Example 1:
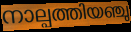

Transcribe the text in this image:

നാല്പത്തിയഞ്ചു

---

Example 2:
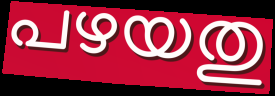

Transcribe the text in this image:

പഴയതു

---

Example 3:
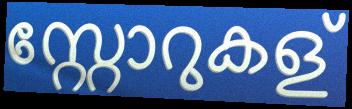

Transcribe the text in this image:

സ്റ്റോറുകള്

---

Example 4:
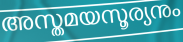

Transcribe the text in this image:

അസ്തമയസൂര്യനും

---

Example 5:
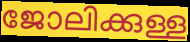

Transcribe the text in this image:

ജോലിക്കുള്ള